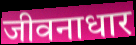
जीवनाधार